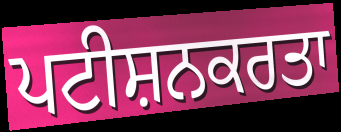
ਪਟੀਸ਼ਨਕਰਤਾ